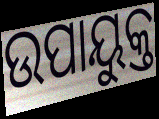
ଉପାୟୁକ୍ତ